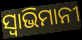
ସ୍ବାଭିମାନୀ